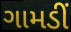
ગામડીં